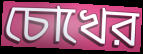
চোখের